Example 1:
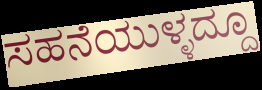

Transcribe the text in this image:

ಸಹನೆಯುಳ್ಳದ್ದೂ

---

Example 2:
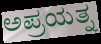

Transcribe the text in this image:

ಅಪ್ರಯತ್ನ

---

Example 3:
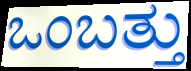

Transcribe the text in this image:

ಒಂಬತ್ತು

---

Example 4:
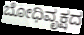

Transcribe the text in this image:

ಬೋಧಿವೃಕ್ಷದ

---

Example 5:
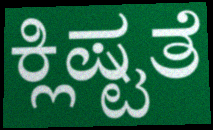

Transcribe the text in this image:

ಕ್ಲಿಷ್ಟತೆ